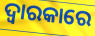
ଦ୍ବାରକାରେ